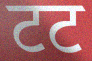
टट